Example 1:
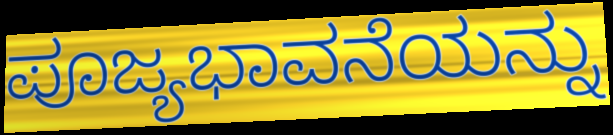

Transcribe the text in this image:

ಪೂಜ್ಯಭಾವನೆಯನ್ನು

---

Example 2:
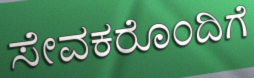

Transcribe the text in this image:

ಸೇವಕರೊಂದಿಗೆ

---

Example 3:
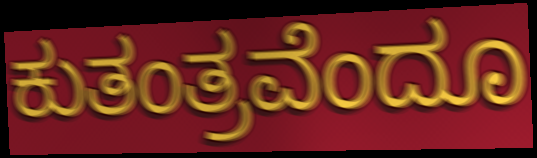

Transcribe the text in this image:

ಕುತಂತ್ರವೆಂದೂ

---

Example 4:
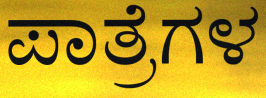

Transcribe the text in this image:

ಪಾತ್ರೆಗಳ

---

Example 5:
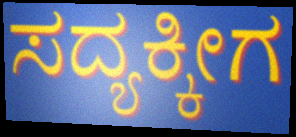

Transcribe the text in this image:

ಸದ್ಯಕ್ಕೀಗ